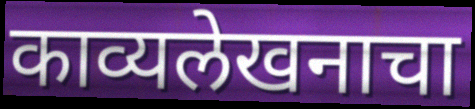
काव्यलेखनाचा